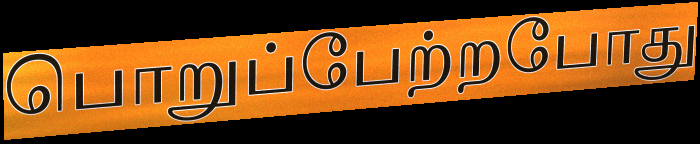
பொறுப்பேற்றபோது